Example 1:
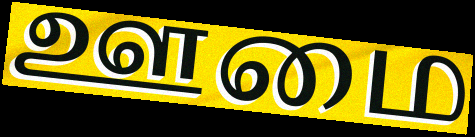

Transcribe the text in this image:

ஊமை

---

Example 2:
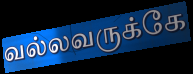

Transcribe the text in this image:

வல்லவருக்கே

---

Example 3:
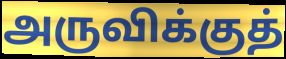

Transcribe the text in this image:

அருவிக்குத்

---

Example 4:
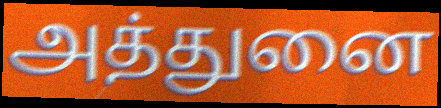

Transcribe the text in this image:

அத்துனை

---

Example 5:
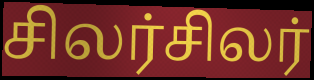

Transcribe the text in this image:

சிலர்சிலர்